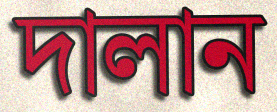
দালান